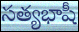
సత్యభాషీ